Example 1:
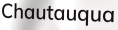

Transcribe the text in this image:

Chautauqua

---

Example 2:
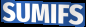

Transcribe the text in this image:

SUMIFS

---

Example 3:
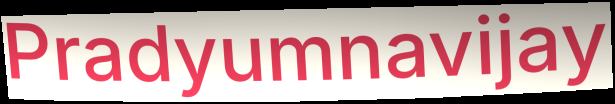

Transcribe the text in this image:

Pradyumnavijay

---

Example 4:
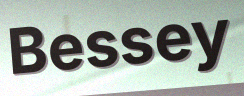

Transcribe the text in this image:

Bessey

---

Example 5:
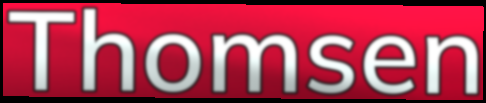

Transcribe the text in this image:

Thomsen